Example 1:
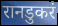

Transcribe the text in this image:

रानडुकरं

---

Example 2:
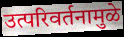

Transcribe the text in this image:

उत्परिवर्तनामुळे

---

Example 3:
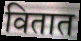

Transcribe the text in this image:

वितात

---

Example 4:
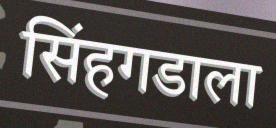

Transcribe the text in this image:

सिंहगडाला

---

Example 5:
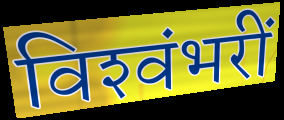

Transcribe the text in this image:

विश्वंभरीं